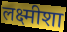
लक्ष्मीशा